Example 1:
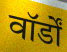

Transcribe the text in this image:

वॉर्डों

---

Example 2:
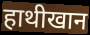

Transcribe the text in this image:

हाथीखान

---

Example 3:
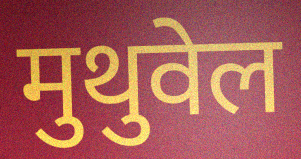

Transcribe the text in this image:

मुथुवेल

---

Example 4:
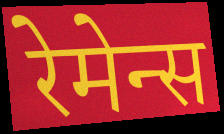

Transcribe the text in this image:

रेमेन्स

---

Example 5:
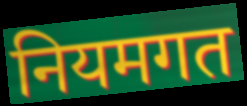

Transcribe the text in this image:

नियमगत